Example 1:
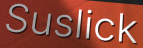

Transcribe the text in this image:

Suslick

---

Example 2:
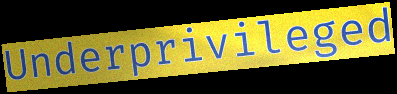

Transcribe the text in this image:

Underprivileged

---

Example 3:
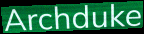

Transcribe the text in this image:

Archduke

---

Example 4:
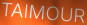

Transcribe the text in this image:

TAIMOUR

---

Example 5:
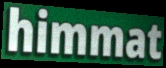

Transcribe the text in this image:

himmat